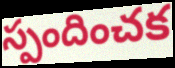
స్పందించక